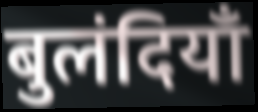
बुलंदियाँ